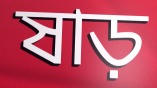
ষাড়